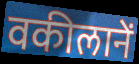
वकीलानें